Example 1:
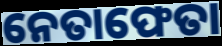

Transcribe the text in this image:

ନେତାଫେତା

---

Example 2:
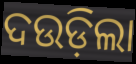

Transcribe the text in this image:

ଦଉଡ଼ିଲା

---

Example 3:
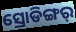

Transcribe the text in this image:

ସ୍ରୋଡିଙ୍ଗର୍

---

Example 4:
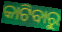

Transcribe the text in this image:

କାଟିବାରୁ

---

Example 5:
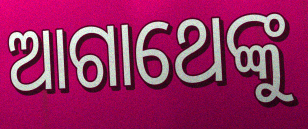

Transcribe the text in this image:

ଆଗାଥେଙ୍କୁ